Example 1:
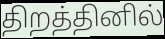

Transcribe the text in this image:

திறத்தினில்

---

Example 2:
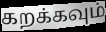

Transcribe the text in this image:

கறக்கவும்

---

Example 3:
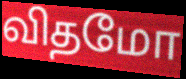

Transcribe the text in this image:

விதமோ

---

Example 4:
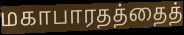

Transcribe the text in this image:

மகாபாரதத்தைத்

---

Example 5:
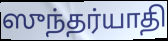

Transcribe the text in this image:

ஸுந்தர்யாதி